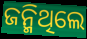
ଜନ୍ମିଥିଲେ